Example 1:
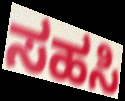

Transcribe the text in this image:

ಸಹಸಿ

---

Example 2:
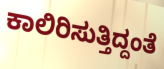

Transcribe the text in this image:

ಕಾಲಿರಿಸುತ್ತಿದ್ದಂತೆ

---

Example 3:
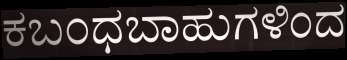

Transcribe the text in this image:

ಕಬಂಧಬಾಹುಗಳಿಂದ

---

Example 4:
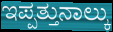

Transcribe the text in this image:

ಇಪ್ಪತ್ತುನಾಲ್ಕು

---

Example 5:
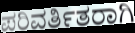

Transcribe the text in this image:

ಪರಿವರ್ತಿತರಾಗಿ